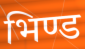
भिण्‍ड